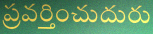
ప్రవర్తించుదురు